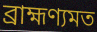
ব্রাহ্মণ্যমত